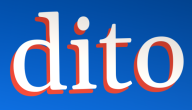
dito